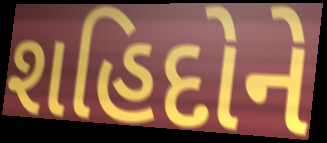
શહિદોને